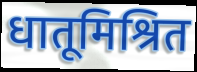
धातूमिश्रित